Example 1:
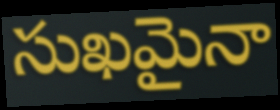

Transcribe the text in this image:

సుఖమైనా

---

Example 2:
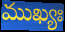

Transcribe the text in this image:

ముఖ్యః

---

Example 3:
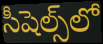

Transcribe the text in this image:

సీషెల్స్‌లో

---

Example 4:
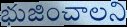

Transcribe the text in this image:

భుజించాలని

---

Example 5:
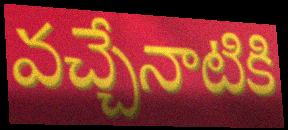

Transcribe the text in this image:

వచ్చేనాటికి